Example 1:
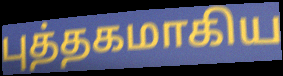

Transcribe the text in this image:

புத்தகமாகிய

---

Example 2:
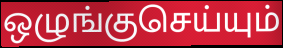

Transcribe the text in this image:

ஒழுங்குசெய்யும்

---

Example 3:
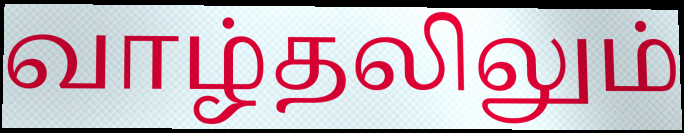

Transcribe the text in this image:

வாழ்தலிலும்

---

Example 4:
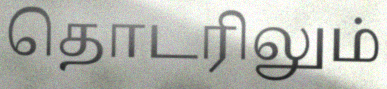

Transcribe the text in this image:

தொடரிலும்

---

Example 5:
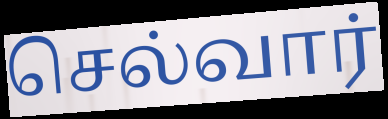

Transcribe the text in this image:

செல்வார்